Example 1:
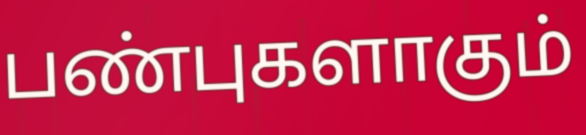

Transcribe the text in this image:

பண்புகளாகும்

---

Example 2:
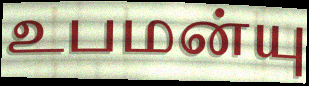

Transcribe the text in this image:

உபமன்யு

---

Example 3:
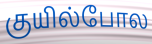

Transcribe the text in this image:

குயில்போல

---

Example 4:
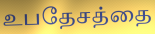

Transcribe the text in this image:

உபதேசத்தை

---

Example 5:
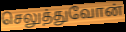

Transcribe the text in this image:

செலுத்துவோன்